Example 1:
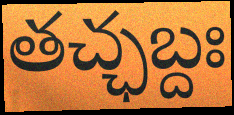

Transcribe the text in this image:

తచ్ఛబ్దః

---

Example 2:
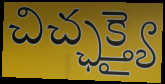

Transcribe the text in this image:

చిచ్ఛక్త్యై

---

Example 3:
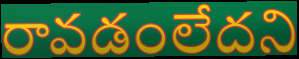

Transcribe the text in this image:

రావడంలేదని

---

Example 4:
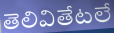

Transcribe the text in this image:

తెలివితేటలే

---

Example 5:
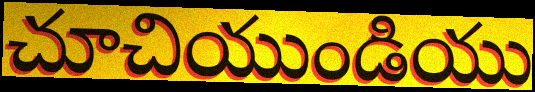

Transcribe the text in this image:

చూచియుండియు